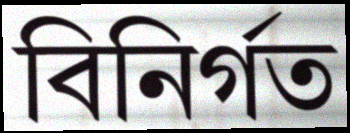
বিনির্গত